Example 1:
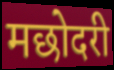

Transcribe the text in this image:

मछोदरी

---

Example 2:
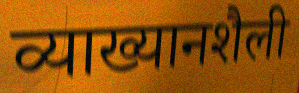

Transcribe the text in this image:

व्याख्यानशैली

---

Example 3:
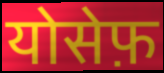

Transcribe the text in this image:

योसेफ़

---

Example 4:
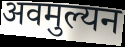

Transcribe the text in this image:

अवमुल्यन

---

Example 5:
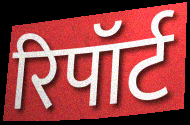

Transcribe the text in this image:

रिपॉर्ट